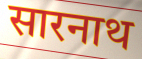
सारनाथ